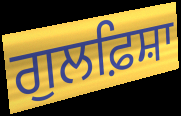
ਗੁਲਫ਼ਿਸ਼ਾ